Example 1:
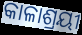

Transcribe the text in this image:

କାଳାଶ୍ରୟୀ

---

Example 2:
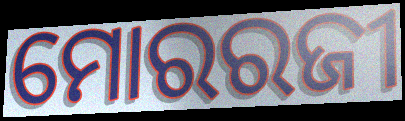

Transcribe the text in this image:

ମୋରରଜୀ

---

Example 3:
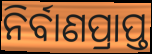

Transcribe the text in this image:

ନିର୍ବାଣପ୍ରାପ୍ତ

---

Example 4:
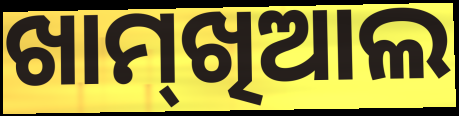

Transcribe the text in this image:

ଖାମ୍‌ଖିଆଲ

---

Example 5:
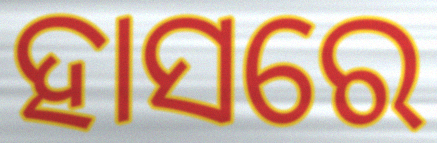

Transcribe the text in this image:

ହାସରେ